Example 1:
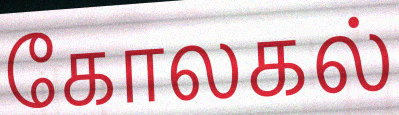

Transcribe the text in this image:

கோலகல்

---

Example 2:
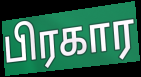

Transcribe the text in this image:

பிரகார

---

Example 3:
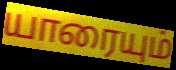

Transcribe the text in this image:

யாரையும்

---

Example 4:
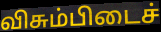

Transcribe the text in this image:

விசும்பிடைச்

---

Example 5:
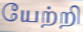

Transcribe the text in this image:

யேற்றி